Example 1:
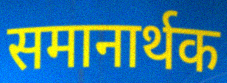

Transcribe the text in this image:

समानार्थक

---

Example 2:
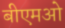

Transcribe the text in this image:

बीएमओ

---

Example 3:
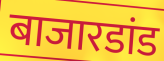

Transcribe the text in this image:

बाजारडांड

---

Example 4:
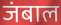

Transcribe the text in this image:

जंबाल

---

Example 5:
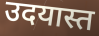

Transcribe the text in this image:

उदयास्त